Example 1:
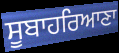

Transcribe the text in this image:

ਸੂਬਾਹਰਿਆਣਾ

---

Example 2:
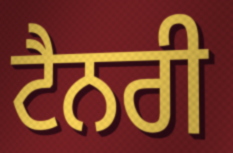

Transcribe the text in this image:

ਟੈਨਰੀ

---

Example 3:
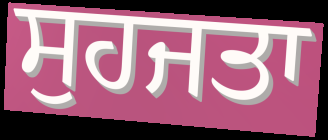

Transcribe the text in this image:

ਸੁਹਜਤਾ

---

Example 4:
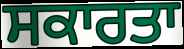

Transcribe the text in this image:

ਸਕਾਰਤਾ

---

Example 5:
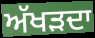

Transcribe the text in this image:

ਅੱਖੜਦਾ